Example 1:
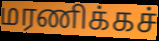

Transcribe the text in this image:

மரணிக்கச்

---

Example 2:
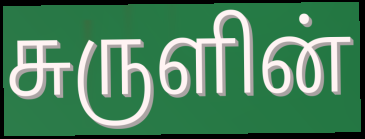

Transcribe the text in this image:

சுருளின்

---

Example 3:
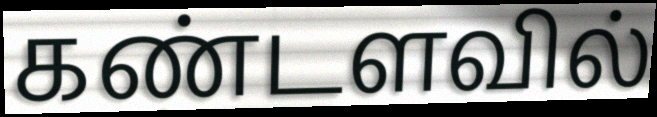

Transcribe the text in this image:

கண்டளவில்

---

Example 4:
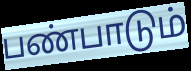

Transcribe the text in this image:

பண்பாடும்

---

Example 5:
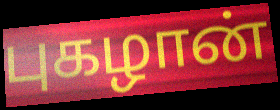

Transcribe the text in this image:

புகழான்